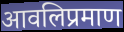
आवलिप्रमाण